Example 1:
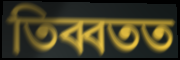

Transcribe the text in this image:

তিব্বতত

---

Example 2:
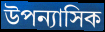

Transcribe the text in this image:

উপন্যাসিক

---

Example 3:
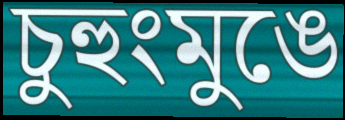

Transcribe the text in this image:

চুহুংমুঙে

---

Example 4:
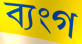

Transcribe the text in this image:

ব্যংগ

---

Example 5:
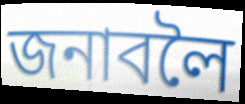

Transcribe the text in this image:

জনাবলৈ